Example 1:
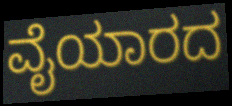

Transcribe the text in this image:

ವೈಯಾರದ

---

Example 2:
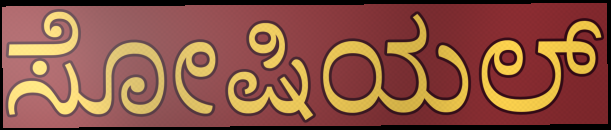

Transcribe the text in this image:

ಸೋಷಿಯಲ್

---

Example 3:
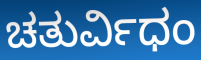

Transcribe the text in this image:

ಚತುರ್ವಿಧಂ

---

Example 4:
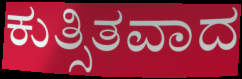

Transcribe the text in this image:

ಕುತ್ಸಿತವಾದ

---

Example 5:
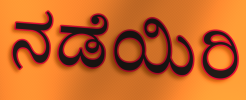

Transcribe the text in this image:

ನಡೆಯಿರಿ